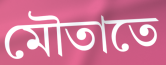
মৌতাতে